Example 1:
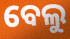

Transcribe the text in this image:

ବେଲୁ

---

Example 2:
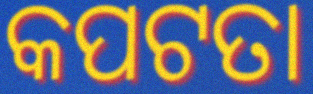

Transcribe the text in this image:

କପଟତା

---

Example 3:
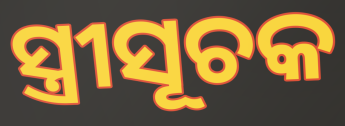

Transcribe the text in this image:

ସ୍ତ୍ରୀସୂଚକ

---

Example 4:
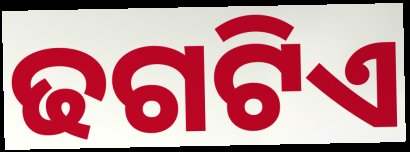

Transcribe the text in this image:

ଢଗଟିଏ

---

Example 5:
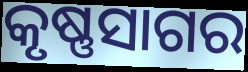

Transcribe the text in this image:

କୃଷ୍ଣସାଗର